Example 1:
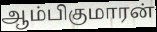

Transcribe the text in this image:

ஆம்பிகுமாரன்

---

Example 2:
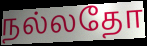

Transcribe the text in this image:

நல்லதோ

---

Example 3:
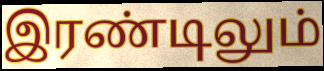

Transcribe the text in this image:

இரண்டிலும்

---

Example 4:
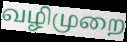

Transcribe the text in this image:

வழிமுறை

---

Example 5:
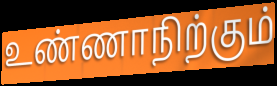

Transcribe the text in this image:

உண்ணாநிற்கும்